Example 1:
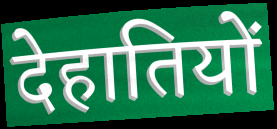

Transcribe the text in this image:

देहातियों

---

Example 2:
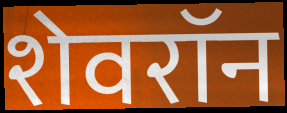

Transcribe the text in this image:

शेवरॉन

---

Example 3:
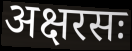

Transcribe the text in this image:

अक्षरसः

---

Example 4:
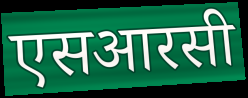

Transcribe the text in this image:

एसआरसी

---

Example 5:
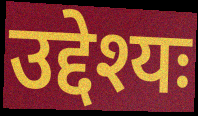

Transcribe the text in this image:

उद्देश्यः